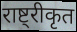
राष्ट्रीकृत